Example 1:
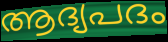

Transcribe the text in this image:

ആദ്യപദം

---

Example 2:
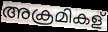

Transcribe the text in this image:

അക്രമികള്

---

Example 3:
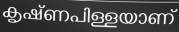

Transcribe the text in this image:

കൃഷ്‌ണപിള്ളയാണ്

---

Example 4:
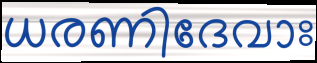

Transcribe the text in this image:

ധരണിദേവാഃ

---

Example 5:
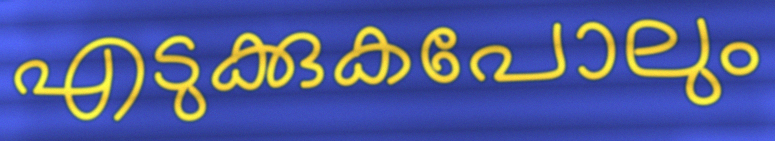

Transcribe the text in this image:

എടുക്കുകപോലും